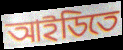
আইডিতে